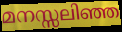
മനസ്സലിഞ്ഞ